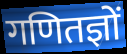
गणितज्ञों